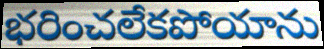
భరించలేకపోయాను